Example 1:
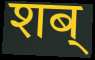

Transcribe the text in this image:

शब्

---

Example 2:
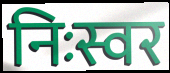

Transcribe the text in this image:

निःस्वर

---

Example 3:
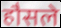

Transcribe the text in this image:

हौसले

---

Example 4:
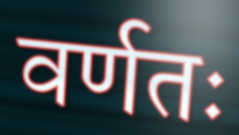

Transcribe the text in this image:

वर्णतः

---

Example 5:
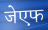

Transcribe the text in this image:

जेएफ